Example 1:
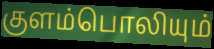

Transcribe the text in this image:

குளம்பொலியும்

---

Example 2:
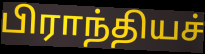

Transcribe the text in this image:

பிராந்தியச்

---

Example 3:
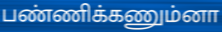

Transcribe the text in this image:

பண்ணிக்கணும்னா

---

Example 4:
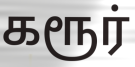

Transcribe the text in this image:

கரூர்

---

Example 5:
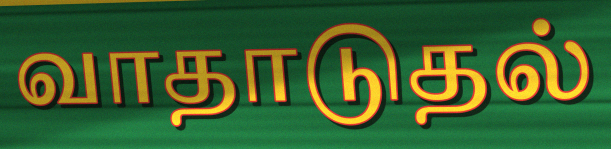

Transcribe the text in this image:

வாதாடுதல்